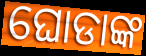
ଘୋଡାଙ୍କ